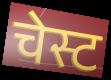
चेस्‍ट